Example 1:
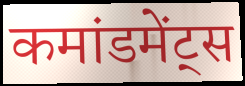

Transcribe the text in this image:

कमांडमेंट्स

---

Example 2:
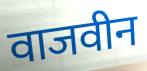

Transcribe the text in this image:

वाजवीन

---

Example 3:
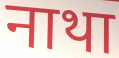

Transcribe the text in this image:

नाथा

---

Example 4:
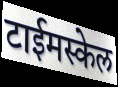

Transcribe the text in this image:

टाईमस्केल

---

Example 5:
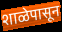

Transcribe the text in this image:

शाळेपासून